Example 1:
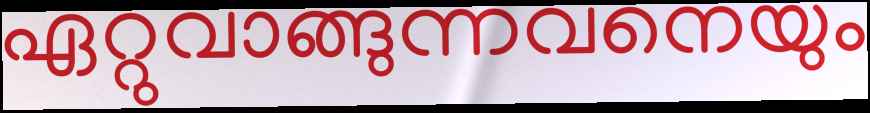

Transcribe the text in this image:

ഏറ്റുവാങ്ങുന്നവനെയും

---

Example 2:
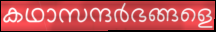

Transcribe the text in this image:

കഥാസന്ദർഭങ്ങളെ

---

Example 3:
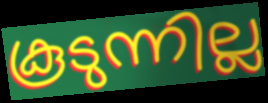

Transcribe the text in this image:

കൂടുന്നില്ല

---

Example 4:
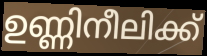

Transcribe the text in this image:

ഉണ്ണിനീലിക്ക്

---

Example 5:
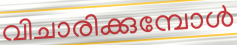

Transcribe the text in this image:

വിചാരിക്കുമ്പോൾ